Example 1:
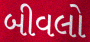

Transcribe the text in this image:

બીવલો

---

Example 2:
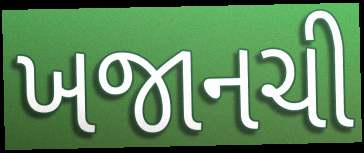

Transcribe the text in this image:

ખજાનચી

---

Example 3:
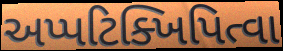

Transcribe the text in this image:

અપ્પટિક્ખિપિત્વા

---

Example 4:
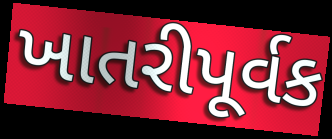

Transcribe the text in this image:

ખાતરીપૂર્વક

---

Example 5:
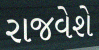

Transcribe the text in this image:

રાજવેશે